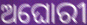
ଅଘୋରୀ